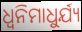
ଧ୍ୱନିମାଧୁର୍ଯ୍ୟ